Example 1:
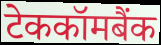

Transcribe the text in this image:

टेककॉमबैंक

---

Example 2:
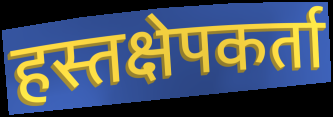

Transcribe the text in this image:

हस्तक्षेपकर्ता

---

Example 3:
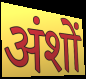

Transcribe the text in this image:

अंशों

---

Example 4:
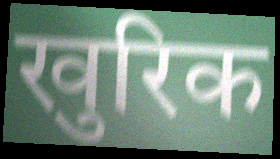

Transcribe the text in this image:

खुरिक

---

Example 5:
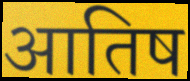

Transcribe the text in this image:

आतिष